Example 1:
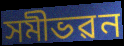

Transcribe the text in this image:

সমীভৱন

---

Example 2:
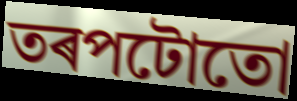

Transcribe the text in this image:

তৰপটোতো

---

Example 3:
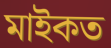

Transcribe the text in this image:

মাইকত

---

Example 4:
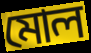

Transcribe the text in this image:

মোল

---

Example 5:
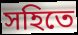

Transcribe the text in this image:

সহিতে